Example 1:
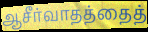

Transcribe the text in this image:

ஆசீர்வாதத்தைத்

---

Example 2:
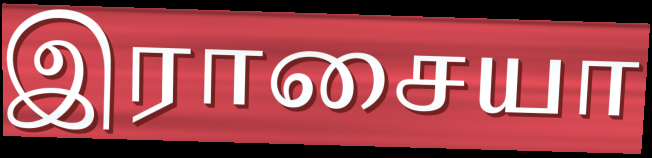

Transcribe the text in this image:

இராசையா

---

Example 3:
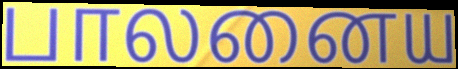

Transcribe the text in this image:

பாலனைய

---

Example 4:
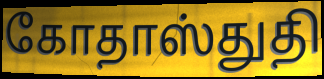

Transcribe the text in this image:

கோதாஸ்துதி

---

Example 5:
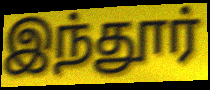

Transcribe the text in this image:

இந்தூர்